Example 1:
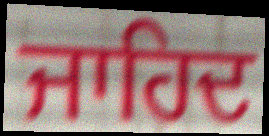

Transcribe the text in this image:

ਜਾਹਿਦ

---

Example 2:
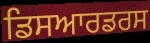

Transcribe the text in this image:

ਡਿਸਆਰਡਰਸ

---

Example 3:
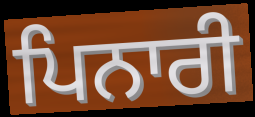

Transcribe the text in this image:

ਪਿਨਾਰੀ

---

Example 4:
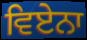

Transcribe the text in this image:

ਵਿਏਨਾ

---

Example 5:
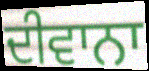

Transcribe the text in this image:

ਦੀਵਾਨਾ